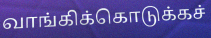
வாங்கிக்கொடுக்கச்